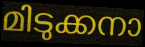
മിടുക്കനാ